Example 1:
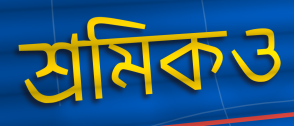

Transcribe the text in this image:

শ্রমিকও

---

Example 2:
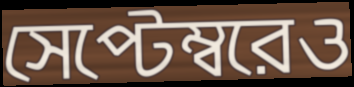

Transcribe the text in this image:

সেপ্টেম্বরেও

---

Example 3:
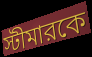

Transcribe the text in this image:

স্টীমারকে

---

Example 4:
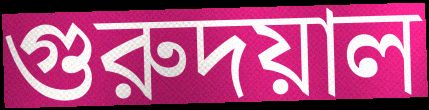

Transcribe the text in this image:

গুরুদয়াল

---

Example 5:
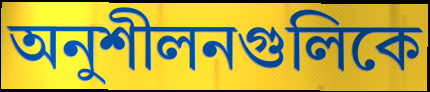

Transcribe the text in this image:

অনুশীলনগুলিকে